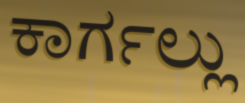
ಕಾರ್ಗಲ್ಲು